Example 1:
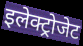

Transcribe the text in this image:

इलेक्ट्रोजेट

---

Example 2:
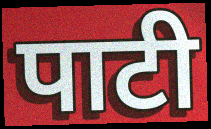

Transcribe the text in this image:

पाटी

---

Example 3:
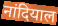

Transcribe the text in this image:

नांदियाल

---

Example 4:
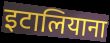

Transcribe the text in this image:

इटालियाना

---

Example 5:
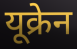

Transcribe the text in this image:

यूक्रेन